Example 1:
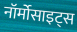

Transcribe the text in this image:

नॉर्मोसाइट्स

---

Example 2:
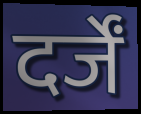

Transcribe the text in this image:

दर्जें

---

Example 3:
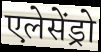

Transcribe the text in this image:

एलेसेंड्रो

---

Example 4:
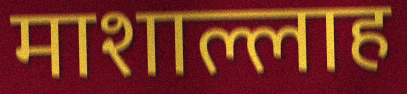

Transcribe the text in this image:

माशाल्लाह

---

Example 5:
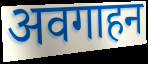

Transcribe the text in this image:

अवगाहन